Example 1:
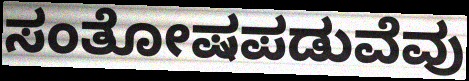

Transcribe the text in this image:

ಸಂತೋಷಪಡುವೆವು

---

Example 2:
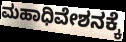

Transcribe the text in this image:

ಮಹಾಧಿವೇಶನಕ್ಕೆ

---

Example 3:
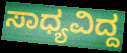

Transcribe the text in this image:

ಸಾಧ್ಯವಿದ್ದ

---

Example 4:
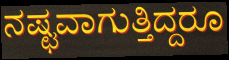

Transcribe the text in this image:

ನಷ್ಟವಾಗುತ್ತಿದ್ದರೂ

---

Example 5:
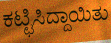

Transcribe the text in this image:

ಕಟ್ಟಿಸಿದ್ದಾಯಿತು